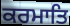
ਕਰਮਾਤਿ